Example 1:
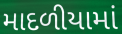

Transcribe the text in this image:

માદળીયામાં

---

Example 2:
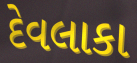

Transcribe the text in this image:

દેવલાકા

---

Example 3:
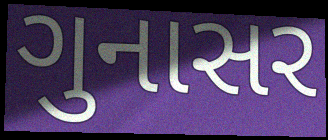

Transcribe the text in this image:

ગુનાસર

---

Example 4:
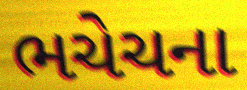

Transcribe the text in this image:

ભચેચના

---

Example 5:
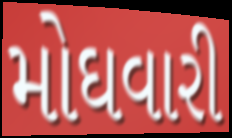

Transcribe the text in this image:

મોઘવારી